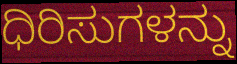
ಧಿರಿಸುಗಳನ್ನು